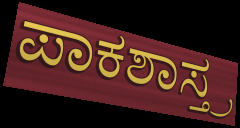
ಪಾಕಶಾಸ್ತ್ರ